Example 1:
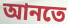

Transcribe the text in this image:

আনতে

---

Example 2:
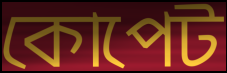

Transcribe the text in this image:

কোপেট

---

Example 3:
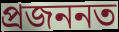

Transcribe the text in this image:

প্ৰজননত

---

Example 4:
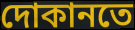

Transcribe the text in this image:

দোকানতে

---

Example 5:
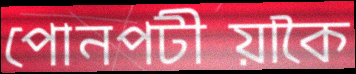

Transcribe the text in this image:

পোনপটীয়াকৈ